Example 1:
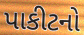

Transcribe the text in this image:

પાકીટનો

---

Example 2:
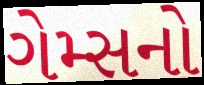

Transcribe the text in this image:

ગેમ્સનો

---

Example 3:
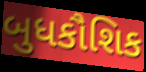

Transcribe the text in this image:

બુધકૌશિક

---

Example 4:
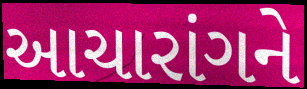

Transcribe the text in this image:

આચારાંગને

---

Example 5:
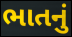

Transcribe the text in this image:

ભાતનું